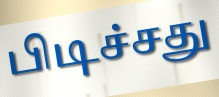
பிடிச்சது